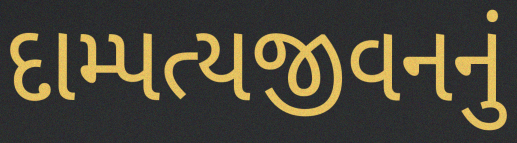
દામ્પત્યજીવનનું